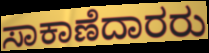
ಸಾಕಾಣೆದಾರರು